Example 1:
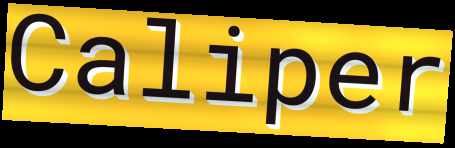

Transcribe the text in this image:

Caliper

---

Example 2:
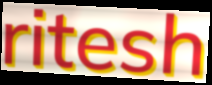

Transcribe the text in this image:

ritesh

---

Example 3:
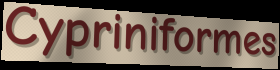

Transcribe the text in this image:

Cypriniformes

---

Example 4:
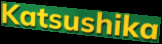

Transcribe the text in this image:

Katsushika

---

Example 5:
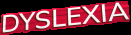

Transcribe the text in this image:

DYSLEXIA